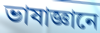
ভাষাজ্ঞানে